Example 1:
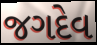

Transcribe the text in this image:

જગદેવ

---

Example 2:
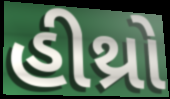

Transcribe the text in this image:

હીથ્રો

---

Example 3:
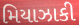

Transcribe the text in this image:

મિયાઝાકી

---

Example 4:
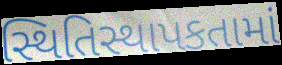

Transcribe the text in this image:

સ્થિતિસ્થાપકતામાં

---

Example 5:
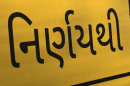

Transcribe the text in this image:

નિર્ણયથી